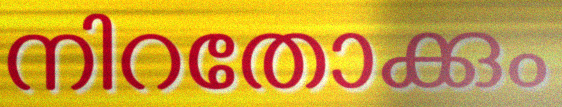
നിറതോക്കും